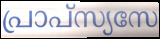
പ്രാപ്സ്യസേ